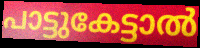
പാട്ടുകേട്ടാൽ